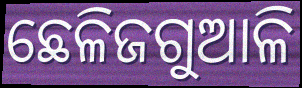
ଛେଳିଜଗୁଆଳି